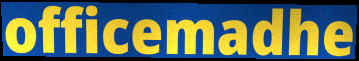
officemadhe